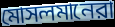
মোসলমানেরা